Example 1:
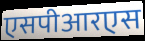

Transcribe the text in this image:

एसपीआरएस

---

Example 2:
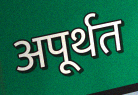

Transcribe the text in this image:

अपूर्थत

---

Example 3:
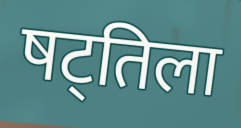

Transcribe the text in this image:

षट्तिला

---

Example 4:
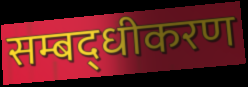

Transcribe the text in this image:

सम्बद्धीकरण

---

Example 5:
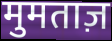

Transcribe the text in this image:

मुमताज़